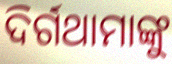
ଦିର୍ଗଥାମାଙ୍କୁ